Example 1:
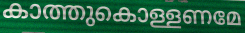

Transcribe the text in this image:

കാത്തുകൊള്ളണമേ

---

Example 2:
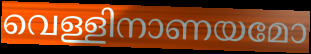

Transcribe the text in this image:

വെള്ളിനാണയമോ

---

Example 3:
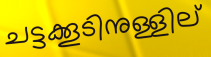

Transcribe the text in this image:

ചട്ടക്കൂടിനുള്ളില്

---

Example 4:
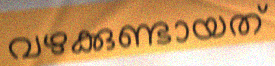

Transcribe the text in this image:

വഴക്കുണ്ടായത്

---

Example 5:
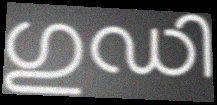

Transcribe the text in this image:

ഗുഡി